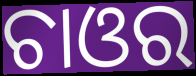
ଚାଓର